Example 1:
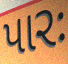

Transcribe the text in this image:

પારઃ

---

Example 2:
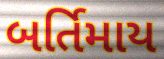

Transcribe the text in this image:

બર્તિમાય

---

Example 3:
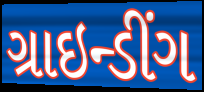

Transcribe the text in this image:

ગ્રાઇન્ડીંગ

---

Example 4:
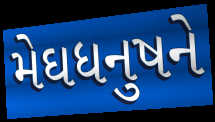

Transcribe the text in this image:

મેઘધનુષને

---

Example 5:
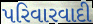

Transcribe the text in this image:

પરિવારવાદી